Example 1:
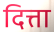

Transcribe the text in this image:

दित्ता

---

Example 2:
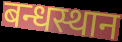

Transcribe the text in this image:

बन्धस्थान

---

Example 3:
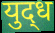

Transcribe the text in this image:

युद्‍ध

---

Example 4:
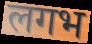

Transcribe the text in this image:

लगभ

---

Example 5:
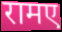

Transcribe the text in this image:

रामए